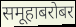
समूहाबरोबर